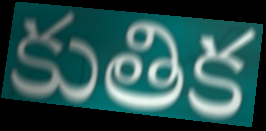
కుతిక